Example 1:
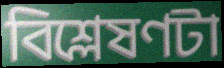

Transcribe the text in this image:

বিশ্লেষণটা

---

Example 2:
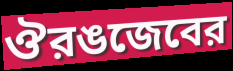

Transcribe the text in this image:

ঔরঙজেবের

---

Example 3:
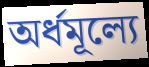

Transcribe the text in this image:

অর্ধমূল্যে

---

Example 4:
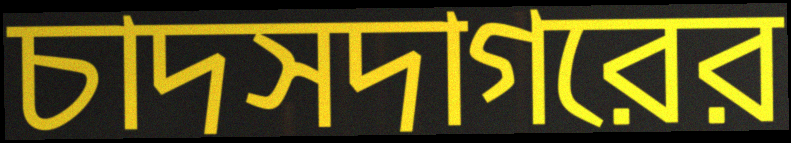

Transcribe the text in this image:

চাদসদাগরের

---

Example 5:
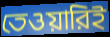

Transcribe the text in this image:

তেওয়ারিই